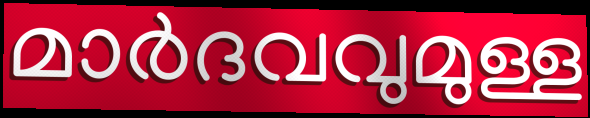
മാർദവവുമുള്ള